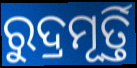
ରୁଦ୍ରମୂର୍ତ୍ତି